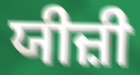
ਯੀਜ਼ੀ